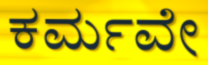
ಕರ್ಮವೇ